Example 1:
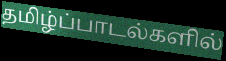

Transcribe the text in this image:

தமிழ்ப்பாடல்களில்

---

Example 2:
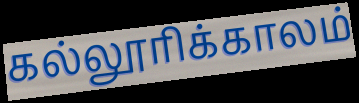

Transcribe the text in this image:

கல்லூரிக்காலம்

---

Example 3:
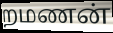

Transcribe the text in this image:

றமணன்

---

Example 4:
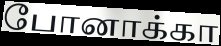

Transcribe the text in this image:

போனாக்கா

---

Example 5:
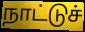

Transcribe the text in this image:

நாட்டுச்